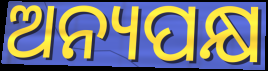
ଅନ୍ୟପକ୍ଷ